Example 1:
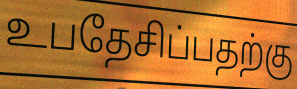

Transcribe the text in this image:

உபதேசிப்பதற்கு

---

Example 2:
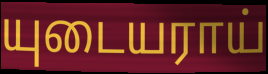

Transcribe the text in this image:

யுடையராய்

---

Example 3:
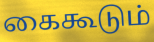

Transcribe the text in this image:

கைகூடும்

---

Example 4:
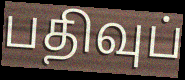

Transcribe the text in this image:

பதிவுப்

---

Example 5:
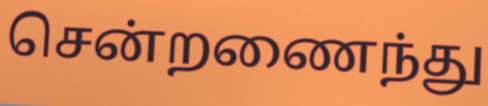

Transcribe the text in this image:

சென்றணைந்து